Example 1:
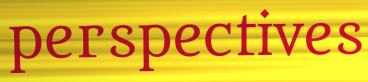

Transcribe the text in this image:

perspectives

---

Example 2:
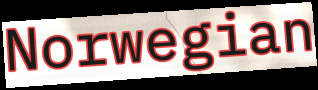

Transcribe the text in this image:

Norwegian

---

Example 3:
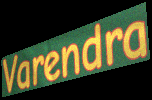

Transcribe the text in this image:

Varendra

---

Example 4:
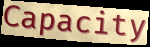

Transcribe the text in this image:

Capacity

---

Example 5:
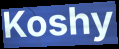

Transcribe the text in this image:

Koshy